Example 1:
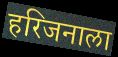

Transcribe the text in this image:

हरिजनाला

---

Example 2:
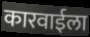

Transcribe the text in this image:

कारवाईला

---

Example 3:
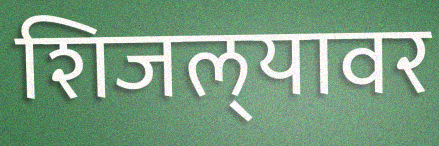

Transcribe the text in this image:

शिजल्यावर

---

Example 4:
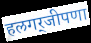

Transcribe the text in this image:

हलगर्जीपणा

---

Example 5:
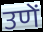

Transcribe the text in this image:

उणें